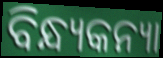
ବିନ୍ଧ୍ୟକନ୍ୟା